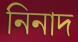
নিনাদ